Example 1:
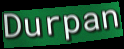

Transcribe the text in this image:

Durpan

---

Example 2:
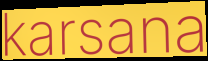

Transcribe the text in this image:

karsana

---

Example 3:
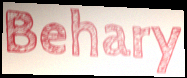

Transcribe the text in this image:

Behary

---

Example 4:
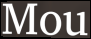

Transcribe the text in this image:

Mou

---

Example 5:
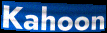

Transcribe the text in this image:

Kahoon